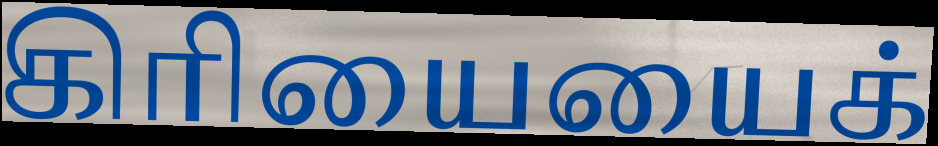
கிரியையைக்